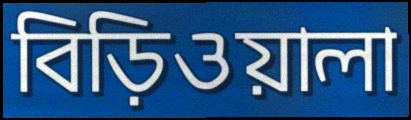
বিড়িওয়ালা